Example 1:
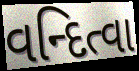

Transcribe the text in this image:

વન્દિત્વા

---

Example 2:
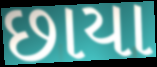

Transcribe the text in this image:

છાયા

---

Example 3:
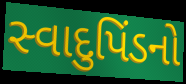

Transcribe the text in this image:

સ્વાદુપિંડનો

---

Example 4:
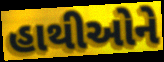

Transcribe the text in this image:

હાથીઓને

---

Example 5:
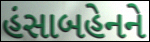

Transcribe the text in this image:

હંસાબહેનને